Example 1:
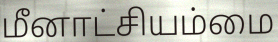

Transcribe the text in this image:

மீனாட்சியம்மை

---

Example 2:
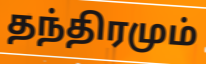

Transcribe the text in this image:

தந்திரமும்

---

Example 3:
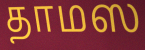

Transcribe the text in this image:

தாமஸ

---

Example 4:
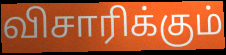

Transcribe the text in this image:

விசாரிக்கும்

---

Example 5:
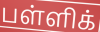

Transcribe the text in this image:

பள்ளிக்